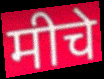
मीचे